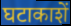
घटाकाशें